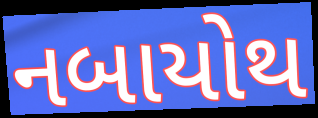
નબાયોથ